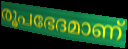
രൂപഭേദമാണ്